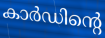
കാർഡിന്റെ